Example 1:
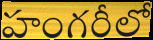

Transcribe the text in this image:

హంగరీలో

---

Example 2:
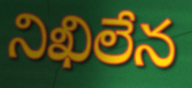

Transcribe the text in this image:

నిఖిలేన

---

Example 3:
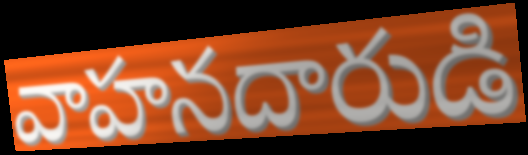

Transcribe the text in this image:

వాహనదారుడి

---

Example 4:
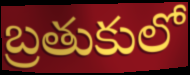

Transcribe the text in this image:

బ్రతుకులో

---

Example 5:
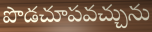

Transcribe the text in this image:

పొడచూపవచ్చును